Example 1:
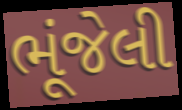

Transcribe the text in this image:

ભૂંજેલી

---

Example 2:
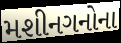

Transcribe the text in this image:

મશીનગનોના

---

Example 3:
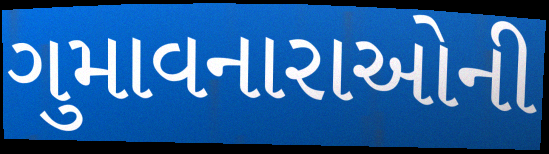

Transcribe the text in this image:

ગુમાવનારાઓની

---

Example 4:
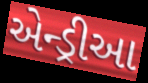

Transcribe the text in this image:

એન્ડ્રીઆ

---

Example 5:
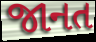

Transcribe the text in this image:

જાનત